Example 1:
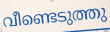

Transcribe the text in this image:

വീണ്ടെടുത്തു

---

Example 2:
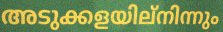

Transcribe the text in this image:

അടുക്കളയില്നിന്നും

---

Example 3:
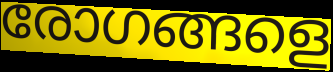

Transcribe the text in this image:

രോഗങ്ങളെ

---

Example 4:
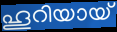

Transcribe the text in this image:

ഹൂറിയായ്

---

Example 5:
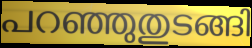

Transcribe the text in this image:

പറഞ്ഞുതുടങ്ങി